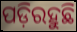
ପଡ଼ିରହୁଛି